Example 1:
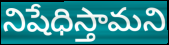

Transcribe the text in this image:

నిషేధిస్తామని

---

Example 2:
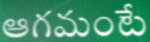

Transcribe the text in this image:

ఆగమంటే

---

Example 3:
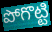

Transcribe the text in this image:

పోగొట్టి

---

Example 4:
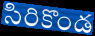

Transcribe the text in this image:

సిరికొండ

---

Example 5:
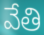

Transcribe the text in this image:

వేతి